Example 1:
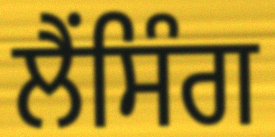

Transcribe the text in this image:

ਲੈਂਸਿੰਗ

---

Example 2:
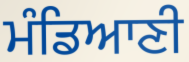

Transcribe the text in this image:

ਮੰਡਿਆਣੀ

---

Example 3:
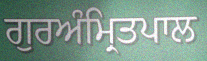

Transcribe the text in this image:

ਗੁਰਅੰਮ੍ਰਿਤਪਾਲ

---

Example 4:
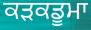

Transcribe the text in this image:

ਕੜਕਡੂਮਾ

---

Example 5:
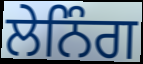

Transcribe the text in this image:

ਲੇਨਿੰਗ